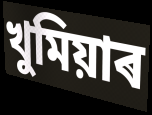
খুমিয়াৰ